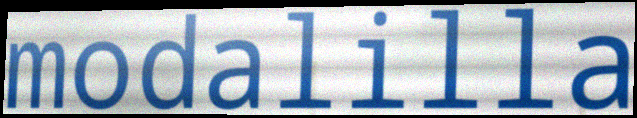
modalilla